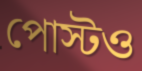
পোস্টও